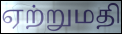
ஏற்றுமதி